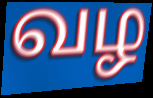
வழ